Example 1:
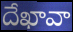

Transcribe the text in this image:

దేఖావా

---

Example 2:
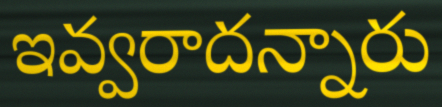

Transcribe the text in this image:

ఇవ్వరాదన్నారు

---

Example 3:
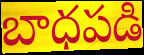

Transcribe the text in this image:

బాధపడి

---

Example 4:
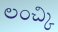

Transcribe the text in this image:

లంచ్కి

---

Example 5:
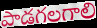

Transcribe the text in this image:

పాడగలగాలి